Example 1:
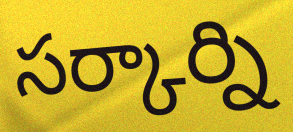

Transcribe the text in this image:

సర్కార్ని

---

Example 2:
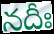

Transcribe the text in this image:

నదీః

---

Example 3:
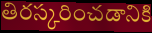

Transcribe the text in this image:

తిరస్కరించడానికి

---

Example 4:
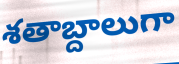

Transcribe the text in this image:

శతాబ్దాలుగా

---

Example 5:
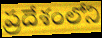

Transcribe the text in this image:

ప్రదేశంలోని